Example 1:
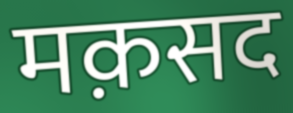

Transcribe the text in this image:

मक़सद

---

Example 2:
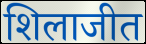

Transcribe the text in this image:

शिलाजीत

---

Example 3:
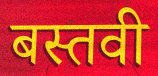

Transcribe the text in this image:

बस्तवी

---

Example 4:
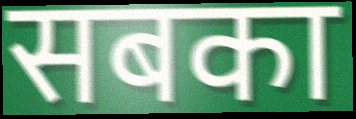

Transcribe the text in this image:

सबका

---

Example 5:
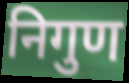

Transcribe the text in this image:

निगुण